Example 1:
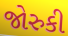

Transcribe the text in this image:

જોરુકી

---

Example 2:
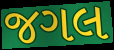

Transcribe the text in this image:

જગલ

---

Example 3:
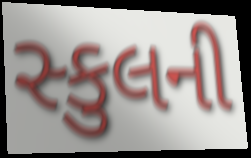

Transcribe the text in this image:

સ્કુલની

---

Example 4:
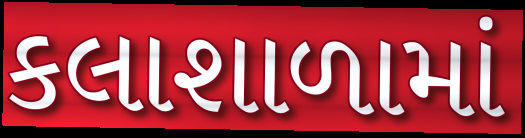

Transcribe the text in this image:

કલાશાળામાં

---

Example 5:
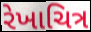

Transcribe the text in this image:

રેખાચિત્ર